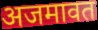
अजमावत